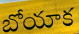
బోయాక